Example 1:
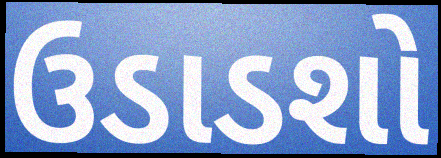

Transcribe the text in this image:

ઉડાડશો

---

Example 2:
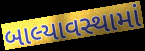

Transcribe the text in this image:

બાલ્યાવસ્થામાં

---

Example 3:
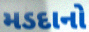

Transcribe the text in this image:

મડદાનો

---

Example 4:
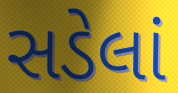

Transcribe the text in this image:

સડેલાં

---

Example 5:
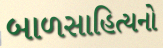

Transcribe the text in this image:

બાળસાહિત્યનો